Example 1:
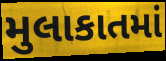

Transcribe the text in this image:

મુલાકાતમાં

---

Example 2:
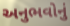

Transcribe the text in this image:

અનુભવોનું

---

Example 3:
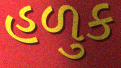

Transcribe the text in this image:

હળુક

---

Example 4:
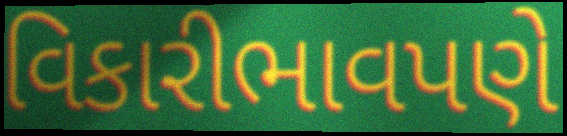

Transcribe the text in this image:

વિકારીભાવપણે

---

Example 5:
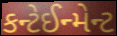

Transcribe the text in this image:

કન્ટેઈન્મેન્ટ